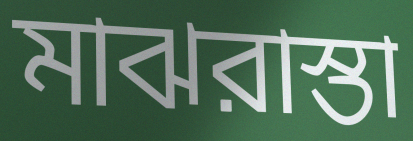
মাঝরাস্তা